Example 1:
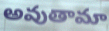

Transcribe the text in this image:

అవుతామా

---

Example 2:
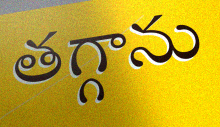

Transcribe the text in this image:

తగ్గాను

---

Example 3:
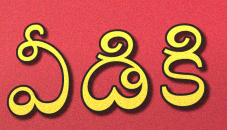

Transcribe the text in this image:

వీడికి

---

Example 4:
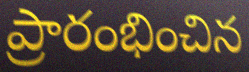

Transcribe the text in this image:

ప్రారంభించిన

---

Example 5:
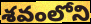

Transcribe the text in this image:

శవంలోని